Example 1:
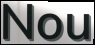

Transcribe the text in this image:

Nou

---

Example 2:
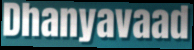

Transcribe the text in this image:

Dhanyavaad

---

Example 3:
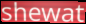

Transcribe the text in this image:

shewat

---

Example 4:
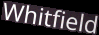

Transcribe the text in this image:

Whitfield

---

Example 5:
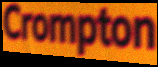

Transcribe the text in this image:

Crompton